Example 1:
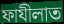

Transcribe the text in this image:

ফাযীলাত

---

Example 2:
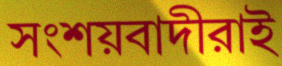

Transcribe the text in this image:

সংশয়বাদীরাই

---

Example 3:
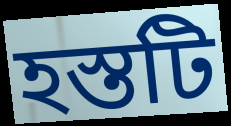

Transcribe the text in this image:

হস্তটি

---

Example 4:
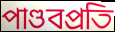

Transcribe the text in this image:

পাণ্ডবপ্রতি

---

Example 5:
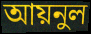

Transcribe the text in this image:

আয়নুল